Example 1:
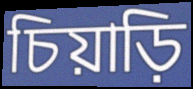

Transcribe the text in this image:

চিয়াড়ি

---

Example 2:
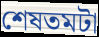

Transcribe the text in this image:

শেষতমটা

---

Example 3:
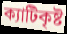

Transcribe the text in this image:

ক্যাটিকৃষ্ট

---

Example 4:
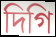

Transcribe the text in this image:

দিগি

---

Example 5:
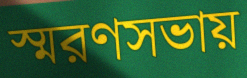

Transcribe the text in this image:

স্মরণসভায়